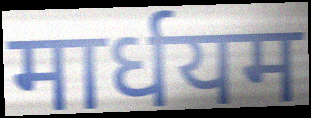
मार्धयम